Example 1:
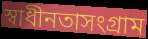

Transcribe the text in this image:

স্বাধীনতাসংগ্রাম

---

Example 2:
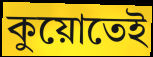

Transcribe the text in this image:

কুয়োতেই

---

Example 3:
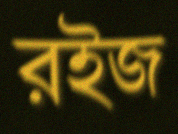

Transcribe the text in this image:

রইজ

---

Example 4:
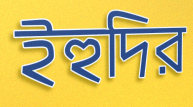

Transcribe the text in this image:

ইহুদির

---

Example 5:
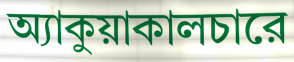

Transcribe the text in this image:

অ্যাকুয়াকালচারে